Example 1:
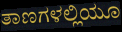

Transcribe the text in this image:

ತಾಣಗಳಲ್ಲಿಯೂ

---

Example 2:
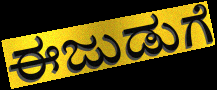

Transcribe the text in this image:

ಈಜುಡುಗೆ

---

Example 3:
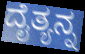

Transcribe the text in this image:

ದೈತ್ಯನ್ನ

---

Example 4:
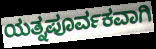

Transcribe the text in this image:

ಯತ್ನಪೂರ್ವಕವಾಗಿ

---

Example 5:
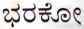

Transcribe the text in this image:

ಭರಕೋ